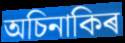
অচিনাকিৰ